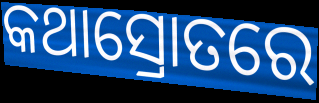
କଥାସ୍ରୋତରେ